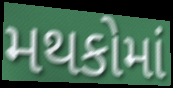
મથકોમાં